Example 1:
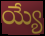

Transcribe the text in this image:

య్యే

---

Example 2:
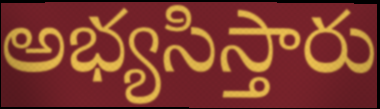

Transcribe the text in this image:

అభ్యసిస్తారు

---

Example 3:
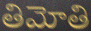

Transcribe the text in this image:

తిమోతి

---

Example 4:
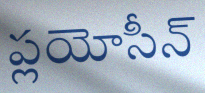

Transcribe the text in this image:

ప్లయోసీన్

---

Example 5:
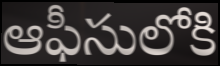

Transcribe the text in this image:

ఆఫీసులోకి